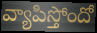
వ్యాపిస్తోందో